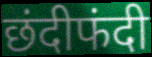
छंदीफंदी